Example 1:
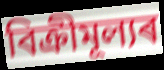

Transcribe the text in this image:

বিক্ৰীমূল্যৰ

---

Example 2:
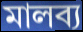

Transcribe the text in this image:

মালব্য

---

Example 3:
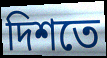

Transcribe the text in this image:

দিশতে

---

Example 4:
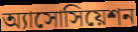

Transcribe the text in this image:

অ্যাসোসিয়েশন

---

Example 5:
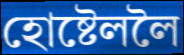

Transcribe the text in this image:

হোষ্টেললৈ